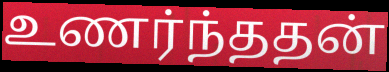
உணர்ந்ததன்